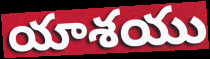
యాశయు